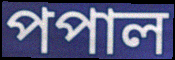
পপাল